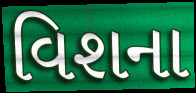
વિશના